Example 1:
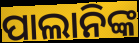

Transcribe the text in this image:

ପାଲାନିଙ୍କ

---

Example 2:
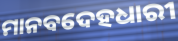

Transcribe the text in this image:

ମାନବଦେହଧାରୀ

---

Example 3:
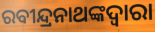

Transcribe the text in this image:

ରବୀନ୍ଦ୍ରନାଥଙ୍କଦ୍ୱାରା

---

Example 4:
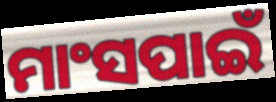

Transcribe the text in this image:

ମାଂସପାଇଁ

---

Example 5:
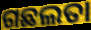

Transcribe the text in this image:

ଗଛଲତା